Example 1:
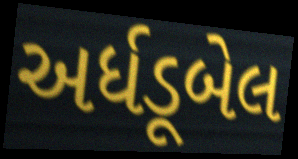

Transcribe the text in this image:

અર્ધડૂબેલ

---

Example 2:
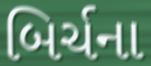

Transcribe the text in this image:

બિર્ચના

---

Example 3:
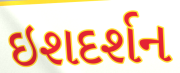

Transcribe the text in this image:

ઇશદર્શન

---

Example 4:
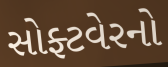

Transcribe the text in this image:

સોફ્ટવેરનો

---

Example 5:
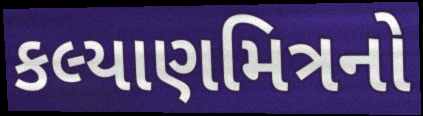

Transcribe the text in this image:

કલ્યાણમિત્રનો